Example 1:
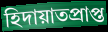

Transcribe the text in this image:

হিদায়াতপ্রাপ্ত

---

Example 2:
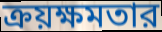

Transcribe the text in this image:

ক্রয়ক্ষমতার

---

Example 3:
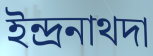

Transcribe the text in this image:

ইন্দ্রনাথদা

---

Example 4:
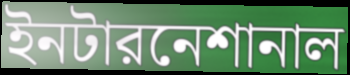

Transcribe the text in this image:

ইনটারনেশানাল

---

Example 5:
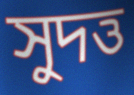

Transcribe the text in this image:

সুদত্ত